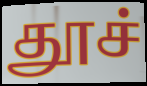
தூச்